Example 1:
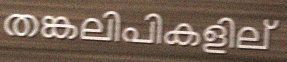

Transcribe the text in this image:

തങ്കലിപികളില്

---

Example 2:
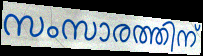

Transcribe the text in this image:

സംസാരത്തിന്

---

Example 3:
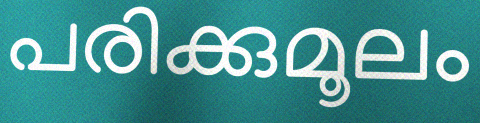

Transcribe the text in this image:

പരിക്കുമൂലം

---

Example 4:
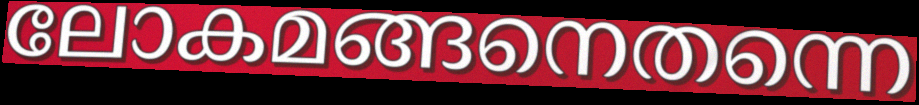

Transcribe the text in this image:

ലോകമങ്ങനെതന്നെ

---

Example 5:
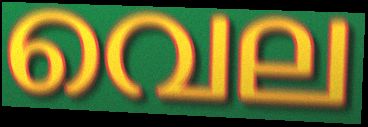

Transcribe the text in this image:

വെല